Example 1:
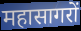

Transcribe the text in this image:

महासागरों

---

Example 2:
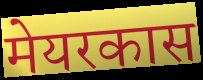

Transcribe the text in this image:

मेयरकास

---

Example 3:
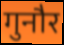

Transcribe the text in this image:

गुनौर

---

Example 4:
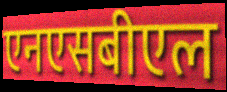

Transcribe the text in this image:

एनएसबीएल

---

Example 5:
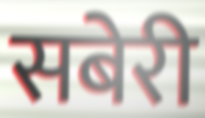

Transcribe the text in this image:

सबेरी